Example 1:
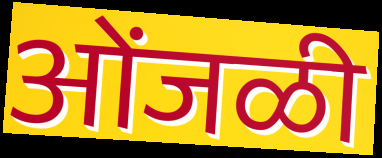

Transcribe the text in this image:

ओंजळी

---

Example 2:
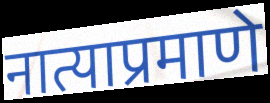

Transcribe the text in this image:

नात्याप्रमाणे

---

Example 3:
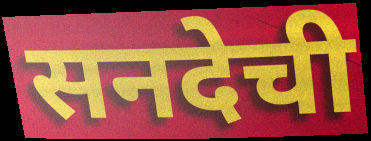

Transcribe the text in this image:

सनदेची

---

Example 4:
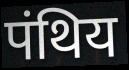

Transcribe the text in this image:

पंथिय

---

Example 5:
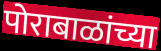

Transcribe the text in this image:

पोराबाळांच्या